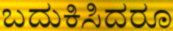
ಬದುಕಿಸಿದರೂ